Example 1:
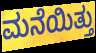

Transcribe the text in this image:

ಮನೆಯಿತ್ತು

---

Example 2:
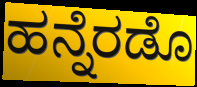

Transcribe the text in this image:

ಹನ್ನೆರಡೊ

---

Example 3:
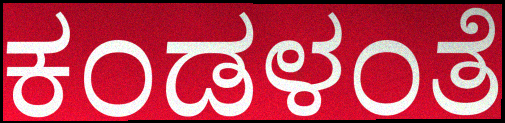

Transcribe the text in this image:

ಕಂಡಳಂತೆ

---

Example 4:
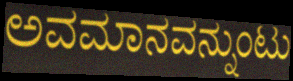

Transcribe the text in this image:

ಅವಮಾನವನ್ನುಂಟು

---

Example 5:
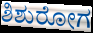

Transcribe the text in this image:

ಶಿಶುರೋಗ